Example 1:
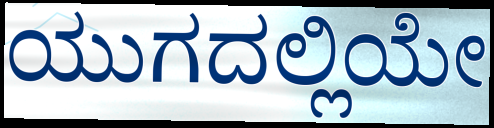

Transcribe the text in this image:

ಯುಗದಲ್ಲಿಯೇ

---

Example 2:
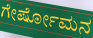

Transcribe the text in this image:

ಗೇರ್ಷೋಮನ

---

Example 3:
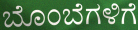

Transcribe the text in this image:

ಬೊಂಬೆಗಳಿಗೆ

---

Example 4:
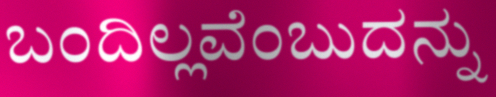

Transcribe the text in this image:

ಬಂದಿಲ್ಲವೆಂಬುದನ್ನು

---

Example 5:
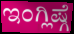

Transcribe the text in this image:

ಇಂಗ್ಲಿಷ್ಗೆ